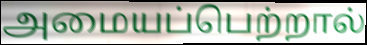
அமையப்பெற்றால்